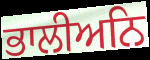
ਭਾਲੀਅਨਿ